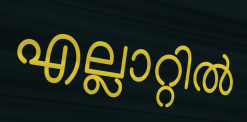
എല്ലാറ്റിൽ